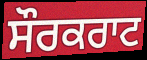
ਸੌਰਕਰਾਟ